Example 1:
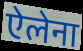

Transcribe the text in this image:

ऐलेना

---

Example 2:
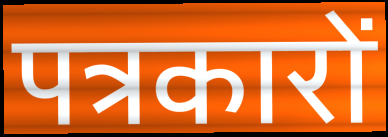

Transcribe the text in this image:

पत्रकारों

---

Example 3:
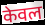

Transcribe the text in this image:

केवल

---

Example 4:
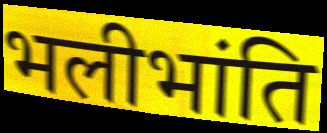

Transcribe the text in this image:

भलीभांति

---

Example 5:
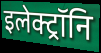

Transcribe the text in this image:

इलेक्ट्रॉनि